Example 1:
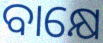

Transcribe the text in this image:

ବାକ୍ଷେ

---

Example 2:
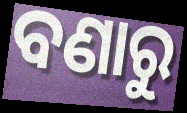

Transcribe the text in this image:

ବଣାରୁ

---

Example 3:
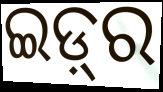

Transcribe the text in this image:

ଇଡ଼୍‍ର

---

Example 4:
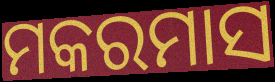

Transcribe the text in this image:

ମକରମାସ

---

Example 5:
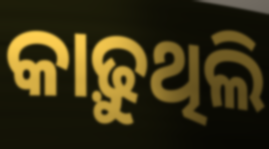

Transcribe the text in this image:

କାଢ଼ୁଥିଲି